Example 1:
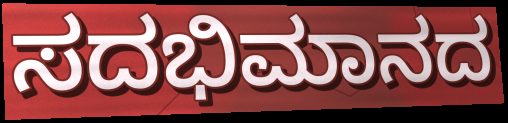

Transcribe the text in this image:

ಸದಭಿಮಾನದ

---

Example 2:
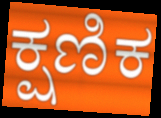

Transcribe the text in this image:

ಕ್ಷಣಿಕ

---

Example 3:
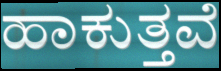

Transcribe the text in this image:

ಹಾಕುತ್ತವೆ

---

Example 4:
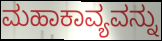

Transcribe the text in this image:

ಮಹಾಕಾವ್ಯವನ್ನು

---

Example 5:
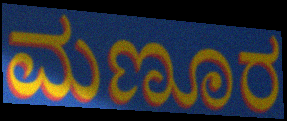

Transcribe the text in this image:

ಮಣೂರ